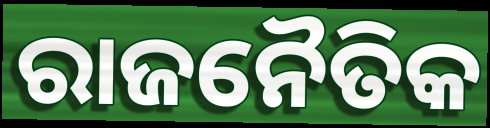
ରାଜନୈତିକ